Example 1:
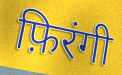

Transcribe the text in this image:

फ़िरंगी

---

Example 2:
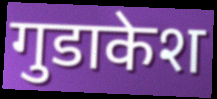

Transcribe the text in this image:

गुडाकेश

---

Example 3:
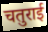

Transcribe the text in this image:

चतुराई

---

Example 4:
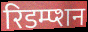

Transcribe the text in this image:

रिडम्प्शन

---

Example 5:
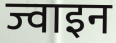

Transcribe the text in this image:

ज्वाइन